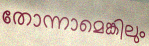
തോന്നാമെങ്കിലും